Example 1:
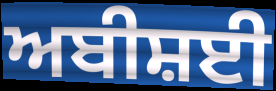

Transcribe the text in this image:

ਅਬੀਸ਼ਈ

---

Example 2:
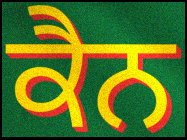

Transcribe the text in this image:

ਕੈਨ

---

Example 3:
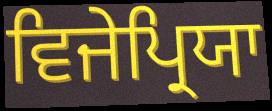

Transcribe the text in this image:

ਵਿਜੇਪ੍ਰਿਯਾ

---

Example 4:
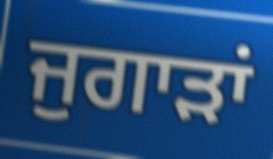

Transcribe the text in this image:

ਜੁਗਾੜਾਂ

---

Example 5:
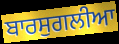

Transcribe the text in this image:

ਬਾਰਸੁਗਲੀਆ